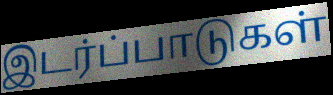
இடர்ப்பாடுகள்